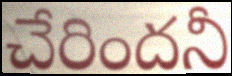
చేరిందనీ